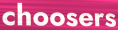
choosers